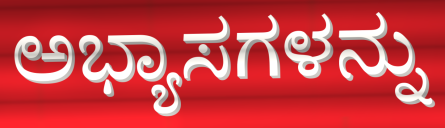
ಅಭ್ಯಾಸಗಳನ್ನು